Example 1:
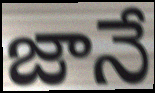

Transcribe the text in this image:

జానే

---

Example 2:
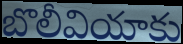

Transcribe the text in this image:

బొలీవియాకు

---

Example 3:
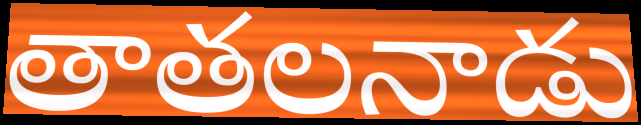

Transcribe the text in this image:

తాతలనాడు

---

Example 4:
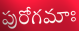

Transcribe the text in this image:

పురోగమాః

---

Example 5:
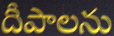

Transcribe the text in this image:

దీపాలను